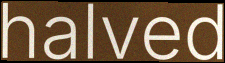
halved